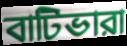
বাটিভারা